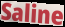
Saline